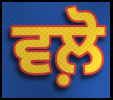
ਵਲ਼ੋ